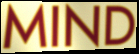
MIND